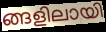
ങ്ങളിലായി